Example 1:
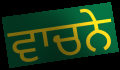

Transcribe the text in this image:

ਵਾਚਨੇ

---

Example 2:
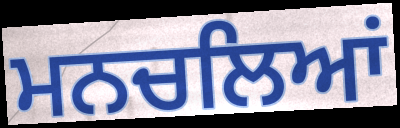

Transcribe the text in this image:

ਮਨਚਲਿਆਂ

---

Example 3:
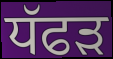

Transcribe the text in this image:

ਧੱਫੜ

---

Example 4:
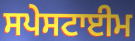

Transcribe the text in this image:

ਸਪੇਸਟਾਈਮ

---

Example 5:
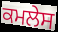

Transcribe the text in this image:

ਕਮਲੇਸ